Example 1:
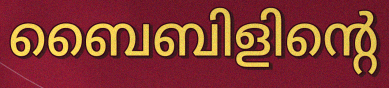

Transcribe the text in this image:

ബൈബിളിന്റെ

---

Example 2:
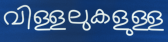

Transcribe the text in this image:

വിള്ളലുകളുള്ള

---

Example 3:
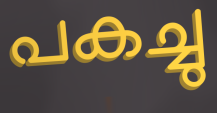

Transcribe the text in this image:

പകച്ചു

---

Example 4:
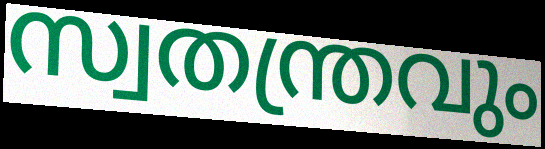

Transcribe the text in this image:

സ്വതന്ത്രവും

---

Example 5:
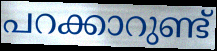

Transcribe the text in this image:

പറക്കാറുണ്ട്